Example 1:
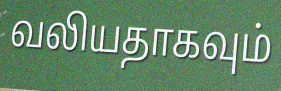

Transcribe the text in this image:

வலியதாகவும்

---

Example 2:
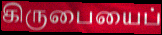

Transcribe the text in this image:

கிருபையைப்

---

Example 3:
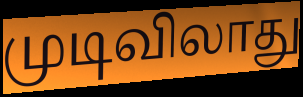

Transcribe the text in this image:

முடிவிலாது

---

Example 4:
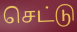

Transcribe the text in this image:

செட்டு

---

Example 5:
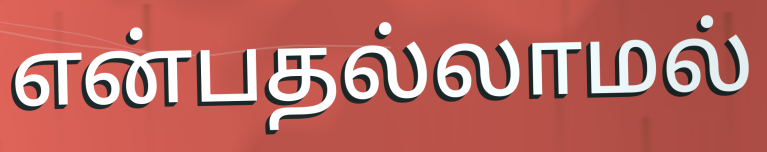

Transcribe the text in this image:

என்பதல்லாமல்